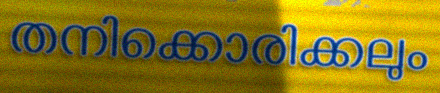
തനിക്കൊരിക്കലും